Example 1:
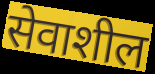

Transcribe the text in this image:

सेवाशील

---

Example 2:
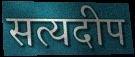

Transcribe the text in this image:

सत्यदीप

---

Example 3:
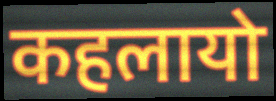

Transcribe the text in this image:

कहलायो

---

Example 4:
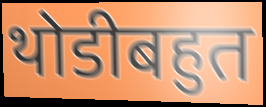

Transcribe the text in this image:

थोडीबहुत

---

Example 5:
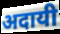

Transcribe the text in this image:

अदायी